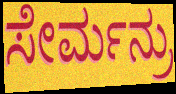
ಸೇರ್ಮನ್ರು